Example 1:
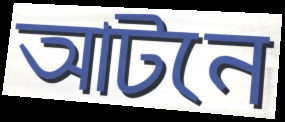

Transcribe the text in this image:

আটনে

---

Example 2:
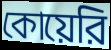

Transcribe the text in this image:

কোয়েরি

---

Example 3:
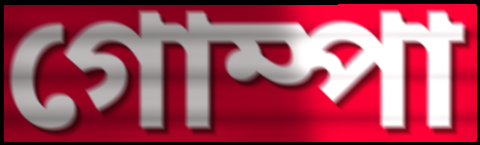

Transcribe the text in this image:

গোম্পা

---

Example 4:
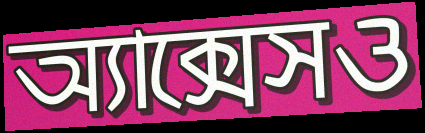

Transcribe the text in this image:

অ্যাক্সেসও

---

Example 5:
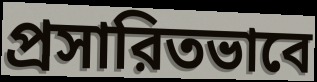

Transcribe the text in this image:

প্রসারিতভাবে